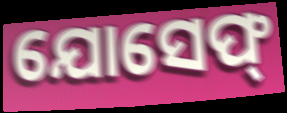
ଯୋସେଫ୍